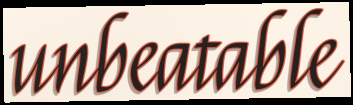
unbeatable